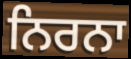
ਨਿਰਨਾ